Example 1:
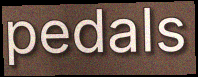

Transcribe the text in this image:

pedals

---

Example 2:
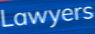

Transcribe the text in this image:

Lawyers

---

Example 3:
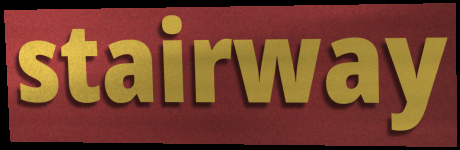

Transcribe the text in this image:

stairway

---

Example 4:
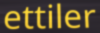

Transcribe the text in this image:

ettiler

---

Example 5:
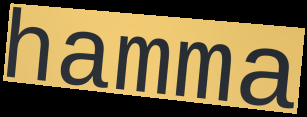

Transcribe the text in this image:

hamma